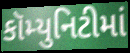
કૉમ્યુનિટીમાં